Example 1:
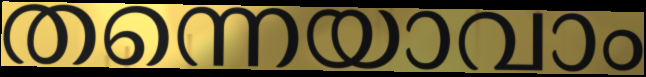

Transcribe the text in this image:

തന്നെയാവാം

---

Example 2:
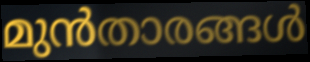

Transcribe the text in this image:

മുൻതാരങ്ങൾ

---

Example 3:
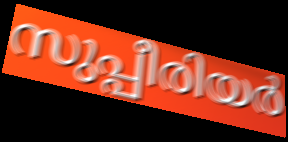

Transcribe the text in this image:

സുപ്പീരിയർ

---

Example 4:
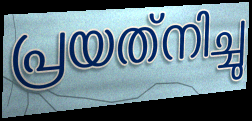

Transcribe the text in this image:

പ്രയത്‌നിച്ചു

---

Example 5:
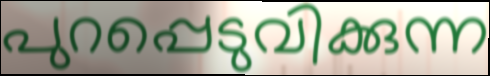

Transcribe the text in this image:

പുറപ്പെടുവിക്കുന്ന